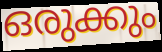
ഒരുക്കും